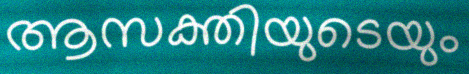
ആസക്തിയുടെയും